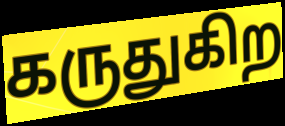
கருதுகிற